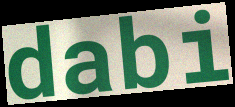
dabi